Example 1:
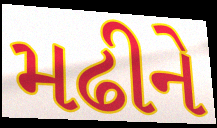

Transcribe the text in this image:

મઢીને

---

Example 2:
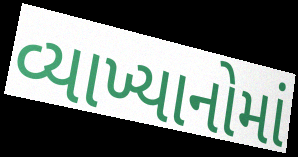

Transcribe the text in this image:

વ્યાખ્યાનોમાં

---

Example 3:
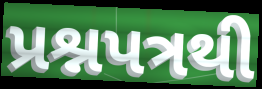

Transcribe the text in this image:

પ્રશ્નપત્રથી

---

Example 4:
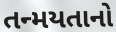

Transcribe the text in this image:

તન્મયતાનો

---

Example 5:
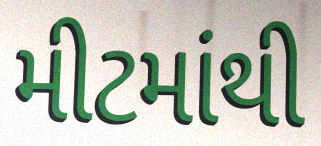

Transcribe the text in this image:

મીટમાંથી